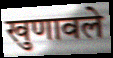
खुणावले